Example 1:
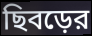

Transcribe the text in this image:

ছিবড়ের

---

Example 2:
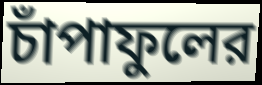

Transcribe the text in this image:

চাঁপাফুলের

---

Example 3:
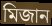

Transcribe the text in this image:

মিজান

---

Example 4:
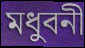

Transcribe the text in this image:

মধুবনী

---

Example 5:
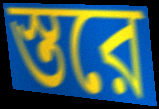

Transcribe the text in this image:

স্তরে